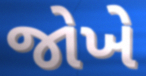
જોખે